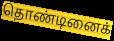
தொண்டினைக்